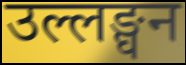
उल्लङ्घन